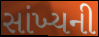
સાંખ્યની